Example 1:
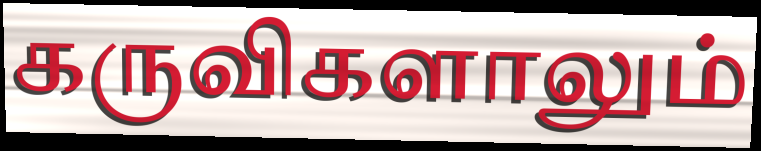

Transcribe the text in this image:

கருவிகளாலும்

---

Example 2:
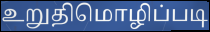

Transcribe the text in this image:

உறுதிமொழிப்படி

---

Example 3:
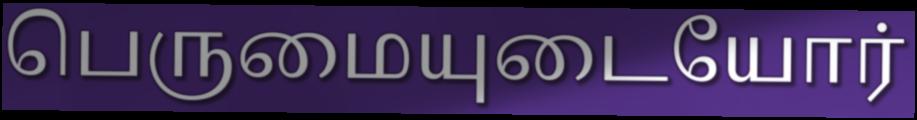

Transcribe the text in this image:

பெருமையுடையோர்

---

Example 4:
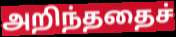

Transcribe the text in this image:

அறிந்ததைச்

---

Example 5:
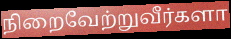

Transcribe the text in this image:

நிறைவேற்றுவீர்களா